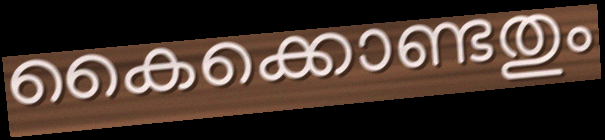
കൈക്കൊണ്ടതും